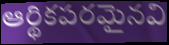
ఆర్థికపరమైనవి